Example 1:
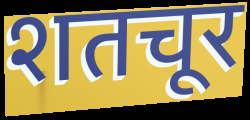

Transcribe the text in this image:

शतचूर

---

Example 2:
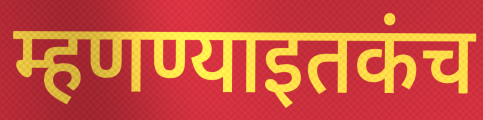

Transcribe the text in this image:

म्हणण्याइतकंच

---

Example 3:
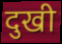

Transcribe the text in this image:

दुखी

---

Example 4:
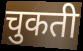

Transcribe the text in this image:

चुकती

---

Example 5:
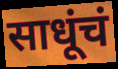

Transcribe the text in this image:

साधूंचं